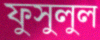
ফুসুলুল